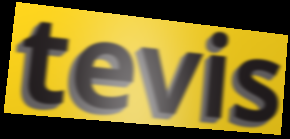
tevis